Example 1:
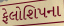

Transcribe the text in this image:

ફેલોશિપના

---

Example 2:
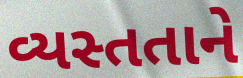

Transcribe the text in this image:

વ્યસ્તતાને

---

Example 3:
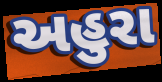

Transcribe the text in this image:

અહુરા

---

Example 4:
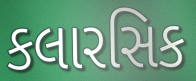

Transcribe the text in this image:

કલારસિક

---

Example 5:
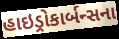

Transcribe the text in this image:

હાઇડ્રોકાર્બન્સના